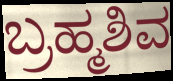
ಬ್ರಹ್ಮಶಿವ